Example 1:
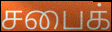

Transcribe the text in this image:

சபைக்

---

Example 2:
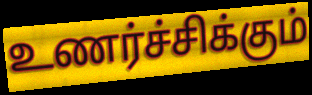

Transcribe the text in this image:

உணர்ச்சிக்கும்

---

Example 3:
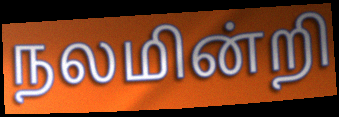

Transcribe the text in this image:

நலமின்றி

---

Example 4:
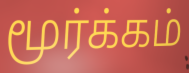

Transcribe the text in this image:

மூர்க்கம்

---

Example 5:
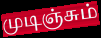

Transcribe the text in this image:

முடிஞ்சும்